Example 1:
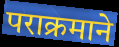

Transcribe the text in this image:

पराक्रमाने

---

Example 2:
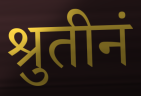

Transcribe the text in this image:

श्रुतीनं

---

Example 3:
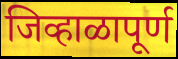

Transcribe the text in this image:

जिव्हाळापूर्ण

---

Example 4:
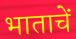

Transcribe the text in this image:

भाताचें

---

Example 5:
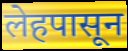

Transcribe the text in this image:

लेहपासून